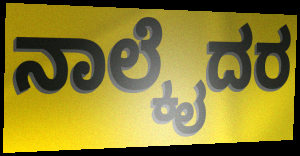
ನಾಲ್ಕೈದರ